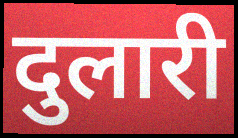
दुलारी